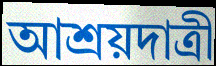
আশ্রয়দাত্রী